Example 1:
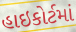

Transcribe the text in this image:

હાઇકોર્ટમાં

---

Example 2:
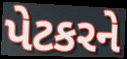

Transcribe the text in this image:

પેટકરને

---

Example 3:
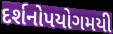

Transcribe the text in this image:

દર્શનોપયોગમયી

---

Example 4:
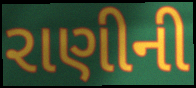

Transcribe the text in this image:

રાણીની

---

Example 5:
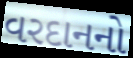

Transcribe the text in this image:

વરદાનનો